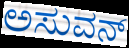
ಅಸುವನ್